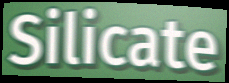
Silicate